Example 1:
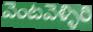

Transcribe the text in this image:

వెంటవెళ్ళిరి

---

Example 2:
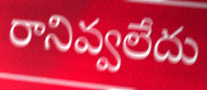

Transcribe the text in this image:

రానివ్వలేదు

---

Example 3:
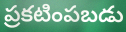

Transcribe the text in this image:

ప్రకటింపబడు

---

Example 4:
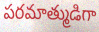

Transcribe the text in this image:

పరమాత్ముడిగా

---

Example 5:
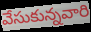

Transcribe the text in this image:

వేసుకున్నవారి